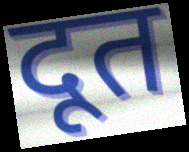
दूत